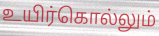
உயிர்கொல்லும்